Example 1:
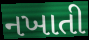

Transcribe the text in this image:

નખાતી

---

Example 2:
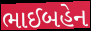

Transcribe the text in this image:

ભાઈબહેન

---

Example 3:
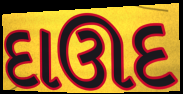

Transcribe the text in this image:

દાઊદ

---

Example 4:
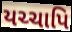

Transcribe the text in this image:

યચ્ચાપિ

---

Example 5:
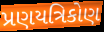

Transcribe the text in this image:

પ્રણયત્રિકોણ